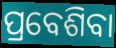
ପ୍ରବେଶିବା